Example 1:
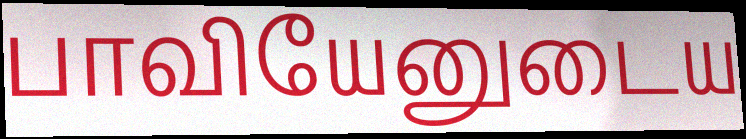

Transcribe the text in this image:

பாவியேனுடைய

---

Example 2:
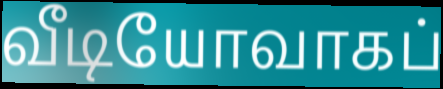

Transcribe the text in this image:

வீடியோவாகப்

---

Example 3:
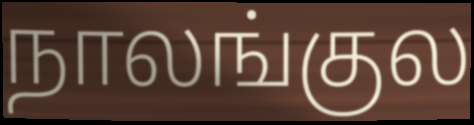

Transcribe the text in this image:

நாலங்குல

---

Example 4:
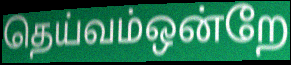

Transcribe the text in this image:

தெய்வம்ஒன்றே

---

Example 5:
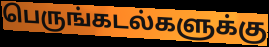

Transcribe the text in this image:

பெருங்கடல்களுக்கு